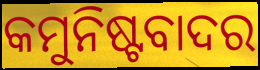
କମୁନିଷ୍ଟବାଦର